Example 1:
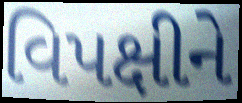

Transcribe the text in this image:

વિપક્ષીને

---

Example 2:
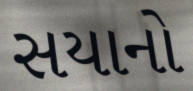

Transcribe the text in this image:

સયાનો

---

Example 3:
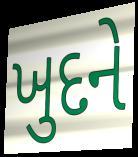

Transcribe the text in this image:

ખુદને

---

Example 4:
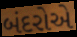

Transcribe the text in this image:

બંદરોએ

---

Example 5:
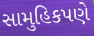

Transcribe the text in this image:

સામુહિકપણે